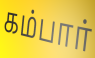
கம்பார்